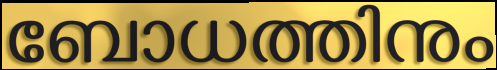
ബോധത്തിനും